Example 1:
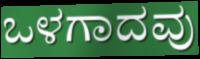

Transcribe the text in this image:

ಒಳಗಾದವು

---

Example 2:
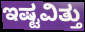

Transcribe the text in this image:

ಇಷ್ಟವಿತ್ತು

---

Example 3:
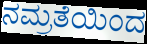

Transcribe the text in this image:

ನಮ್ರತೆಯಿಂದ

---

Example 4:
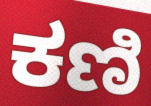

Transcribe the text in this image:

ಕಣಿ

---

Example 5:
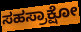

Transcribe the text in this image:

ಸಹಸ್ರಾಕ್ಷೋ